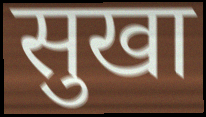
सुखा